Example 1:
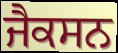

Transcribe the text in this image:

ਜੈਕਸਨ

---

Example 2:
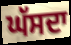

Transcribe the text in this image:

ਘੱਸਦਾ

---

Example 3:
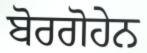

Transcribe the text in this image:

ਬੋਰਗੋਹੇਨ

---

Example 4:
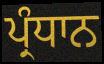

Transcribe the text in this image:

ਪ੍ਰੰਧਾਨ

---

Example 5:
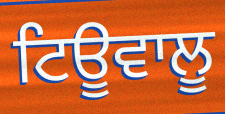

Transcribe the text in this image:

ਟਿਊਵਾਲੂ